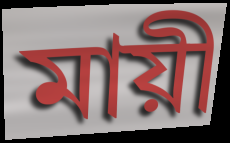
মায়ী